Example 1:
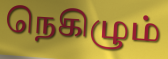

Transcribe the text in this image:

நெகிழும்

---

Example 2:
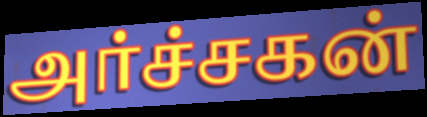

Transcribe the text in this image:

அர்ச்சகன்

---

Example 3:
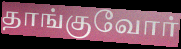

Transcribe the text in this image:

தாங்குவோர்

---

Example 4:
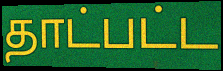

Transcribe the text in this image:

தாட்பட்ட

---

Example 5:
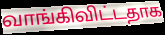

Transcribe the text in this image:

வாங்கிவிட்டதாக